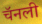
चॅनली